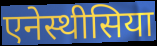
एनेस्थीसिया